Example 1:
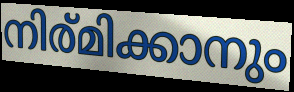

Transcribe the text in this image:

നിര്മിക്കാനും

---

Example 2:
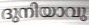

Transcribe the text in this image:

ദുനിയാവു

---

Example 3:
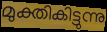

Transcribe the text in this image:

മുക്തികിട്ടുന്നു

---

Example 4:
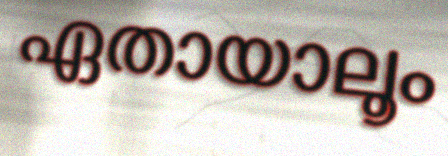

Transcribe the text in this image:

ഏതായാലൂം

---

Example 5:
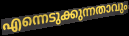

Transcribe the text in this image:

എന്നെടുക്കുന്നതാവും